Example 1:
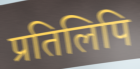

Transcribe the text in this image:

प्रतिलिपि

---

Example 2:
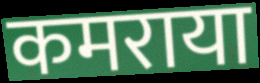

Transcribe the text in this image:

कमराया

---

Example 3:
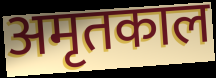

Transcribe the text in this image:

अमृतकाल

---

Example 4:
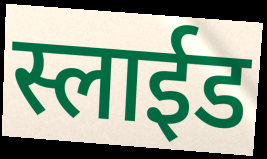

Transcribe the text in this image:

स्लाईड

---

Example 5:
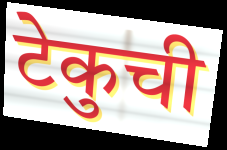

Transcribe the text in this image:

टेकुची